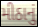
મીઠાનું